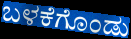
ಬಳಕೆಗೊಂಡು